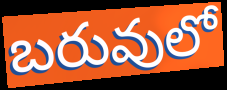
బరువులో